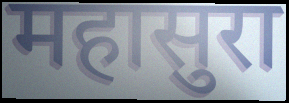
महासुरा